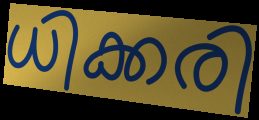
ധിക്കരി